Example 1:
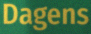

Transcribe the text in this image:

Dagens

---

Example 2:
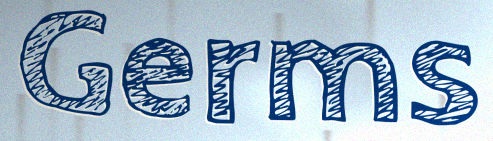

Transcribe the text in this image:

Germs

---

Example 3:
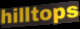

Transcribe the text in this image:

hilltops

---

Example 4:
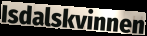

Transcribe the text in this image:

Isdalskvinnen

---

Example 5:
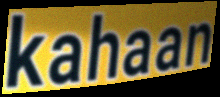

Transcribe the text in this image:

kahaan